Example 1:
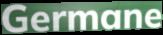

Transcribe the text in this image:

Germane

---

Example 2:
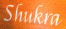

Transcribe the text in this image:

Shukra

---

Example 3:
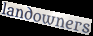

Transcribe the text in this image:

landowners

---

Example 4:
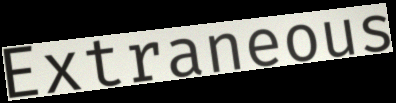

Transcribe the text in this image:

Extraneous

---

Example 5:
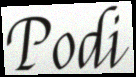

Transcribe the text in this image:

Podi